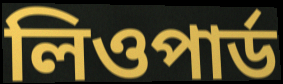
লিওপার্ড